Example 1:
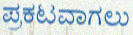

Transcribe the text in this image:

ಪ್ರಕಟವಾಗಲು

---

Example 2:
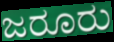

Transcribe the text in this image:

ಜರೂರು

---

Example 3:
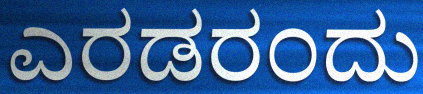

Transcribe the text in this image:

ಎರಡರಂದು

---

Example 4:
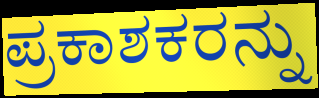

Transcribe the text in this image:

ಪ್ರಕಾಶಕರನ್ನು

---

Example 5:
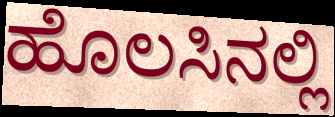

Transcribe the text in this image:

ಹೊಲಸಿನಲ್ಲಿ